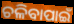
ଚଳିବାପାଇଁ